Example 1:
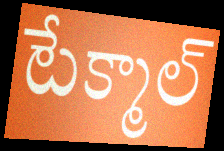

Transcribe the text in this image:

టేక్మాల్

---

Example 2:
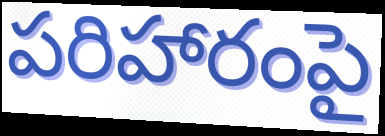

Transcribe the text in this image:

పరిహారంపై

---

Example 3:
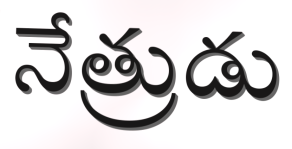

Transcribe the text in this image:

నేత్రుడు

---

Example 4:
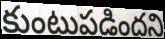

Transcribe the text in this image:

కుంటుపడిందని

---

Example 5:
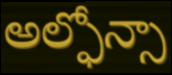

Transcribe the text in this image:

అల్ఫోన్సా